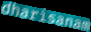
dharisanam